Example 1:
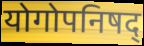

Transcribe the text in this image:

योगोपनिषद्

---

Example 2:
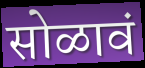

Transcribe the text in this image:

सोळावं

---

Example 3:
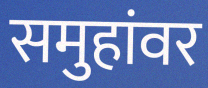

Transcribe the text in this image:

समुहांवर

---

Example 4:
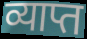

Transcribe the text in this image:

व्याप्त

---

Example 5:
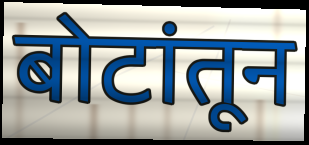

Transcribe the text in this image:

बोटांतून